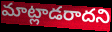
మాట్లాడరాదని